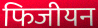
फिजीयन